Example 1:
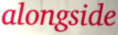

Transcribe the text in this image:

alongside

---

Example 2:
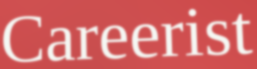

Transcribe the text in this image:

Careerist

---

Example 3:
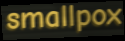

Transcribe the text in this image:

smallpox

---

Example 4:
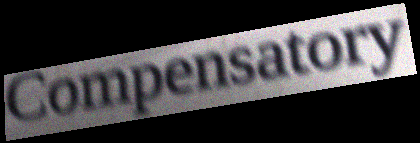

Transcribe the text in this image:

Compensatory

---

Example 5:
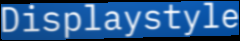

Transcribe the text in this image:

Displaystyle